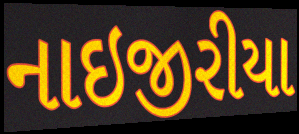
નાઇજીરીયા